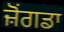
ਜ਼ੋਂਗਡਾ